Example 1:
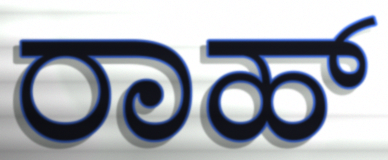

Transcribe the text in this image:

ರಾಹ್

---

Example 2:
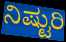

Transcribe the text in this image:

ನಿಷ್ಟುರಿ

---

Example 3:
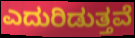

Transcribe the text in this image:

ಎದುರಿಡುತ್ತವೆ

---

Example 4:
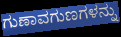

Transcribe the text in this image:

ಗುಣಾವಗುಣಗಳನ್ನು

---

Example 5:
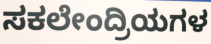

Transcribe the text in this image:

ಸಕಲೇಂದ್ರಿಯಗಳ